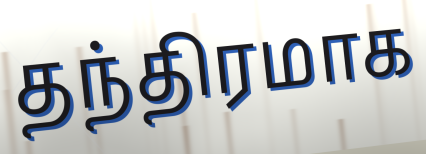
தந்திரமாக